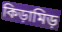
কিড়ামিড়